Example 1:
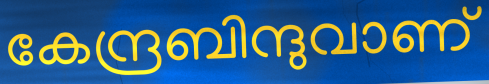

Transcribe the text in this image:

കേന്ദ്രബിന്ദുവാണ്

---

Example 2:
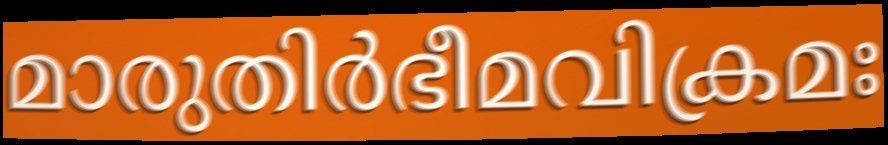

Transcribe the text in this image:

മാരുതിർഭീമവിക്രമഃ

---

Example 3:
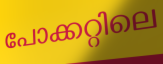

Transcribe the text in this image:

പോക്കറ്റിലെ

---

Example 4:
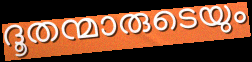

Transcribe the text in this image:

ദൂതന്മാരുടെയും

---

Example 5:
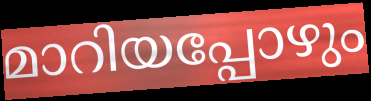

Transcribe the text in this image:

മാറിയപ്പോഴും